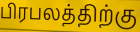
பிரபலத்திற்கு